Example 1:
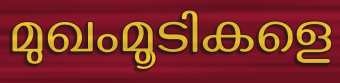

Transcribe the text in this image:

മുഖംമൂടികളെ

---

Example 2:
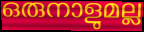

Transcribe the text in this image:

ഒരുനാളുമല്ല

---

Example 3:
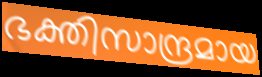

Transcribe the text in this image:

ഭക്തിസാന്ദ്രമായ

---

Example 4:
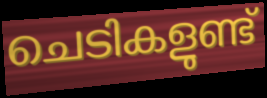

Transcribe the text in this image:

ചെടികളുണ്ട്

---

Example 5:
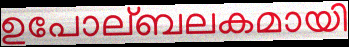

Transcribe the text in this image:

ഉപോല്ബലകമായി